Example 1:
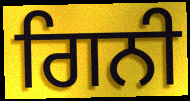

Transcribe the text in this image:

ਗਿਨੀ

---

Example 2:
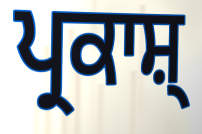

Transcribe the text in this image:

ਪ੍ਰਕਾਸ਼੍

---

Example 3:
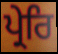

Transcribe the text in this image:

ਪ੍ਰੇਰਿ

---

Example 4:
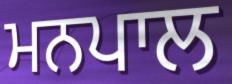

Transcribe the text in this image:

ਮਨਪਾਲ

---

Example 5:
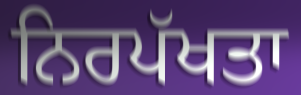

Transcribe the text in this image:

ਨਿਰਪੱਖਤਾ